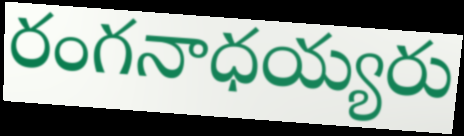
రంగనాధయ్యరు